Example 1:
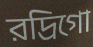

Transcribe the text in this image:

রদ্রিগো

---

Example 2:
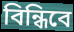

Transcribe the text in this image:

বিন্ধিবে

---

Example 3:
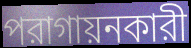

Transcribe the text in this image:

পরাগায়নকারী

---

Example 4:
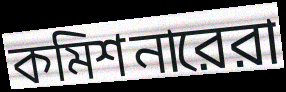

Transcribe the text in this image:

কমিশনারেরা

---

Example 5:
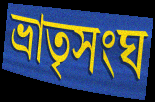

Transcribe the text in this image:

ভ্রাতৃসংঘ